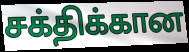
சக்திக்கான